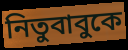
নিতুবাবুকে